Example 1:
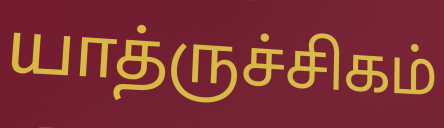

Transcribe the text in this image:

யாத்ருச்சிகம்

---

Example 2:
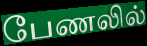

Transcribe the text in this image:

பேணலில்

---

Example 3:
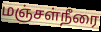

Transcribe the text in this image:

மஞ்சள்நீரை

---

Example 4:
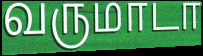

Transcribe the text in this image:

வருமாடா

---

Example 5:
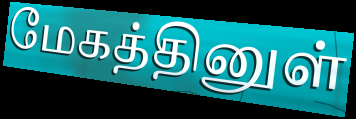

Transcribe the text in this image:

மேகத்தினுள்